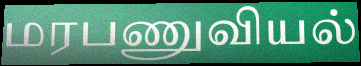
மரபணுவியல்